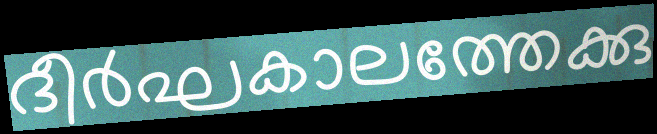
ദീർഘകാലത്തേക്കു